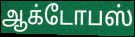
ஆக்டோபஸ்